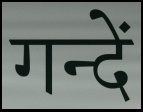
गन्दें